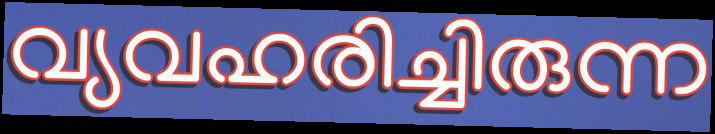
വ്യവഹരിച്ചിരുന്ന